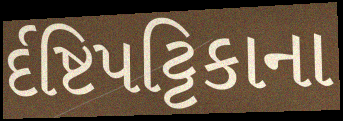
ર્દષ્ટિપટ્ટિકાના